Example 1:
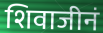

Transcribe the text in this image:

शिवाजीनं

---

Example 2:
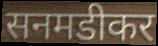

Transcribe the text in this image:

सनमडीकर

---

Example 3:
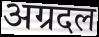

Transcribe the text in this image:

अग्रदल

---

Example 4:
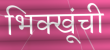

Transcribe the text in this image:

भिक्खूंची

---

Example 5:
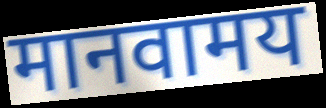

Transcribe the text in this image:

मानवामय